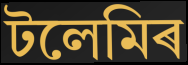
টলেমিৰ